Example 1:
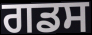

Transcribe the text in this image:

ਗਡਸ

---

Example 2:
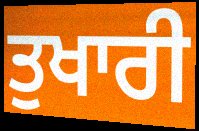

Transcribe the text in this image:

ਤੁਖਾਰੀ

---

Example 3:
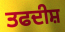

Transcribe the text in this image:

ਤਫਦੀਸ਼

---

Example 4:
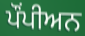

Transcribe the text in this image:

ਪੌਂਪੀਅਨ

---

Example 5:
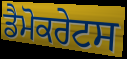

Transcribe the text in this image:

ਡੈਮੋਕਰੇਟਸ